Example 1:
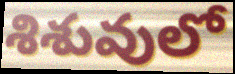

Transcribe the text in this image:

శిశువులో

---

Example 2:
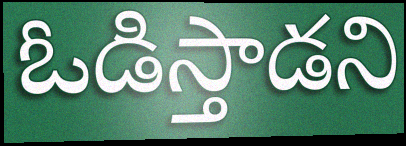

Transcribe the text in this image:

ఓడిస్తాడని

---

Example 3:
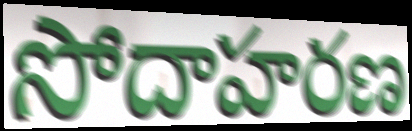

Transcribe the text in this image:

సోదాహరణ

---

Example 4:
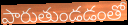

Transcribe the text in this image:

పారుతుండడంతో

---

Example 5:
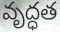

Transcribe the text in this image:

వృద్ధత